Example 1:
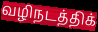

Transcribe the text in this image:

வழிநடத்திக்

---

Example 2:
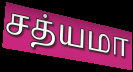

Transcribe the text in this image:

சத்யமா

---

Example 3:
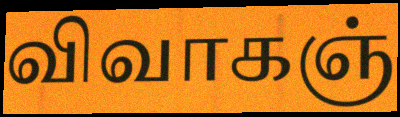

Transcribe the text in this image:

விவாகஞ்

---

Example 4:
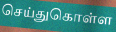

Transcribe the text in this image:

செய்துகொள்ள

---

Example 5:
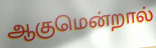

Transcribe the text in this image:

ஆகுமென்றால்